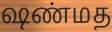
ஷண்மத